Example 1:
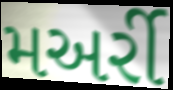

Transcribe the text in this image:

મઅર્રી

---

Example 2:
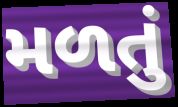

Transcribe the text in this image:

મળતું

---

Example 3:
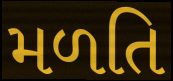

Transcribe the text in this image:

મળતિ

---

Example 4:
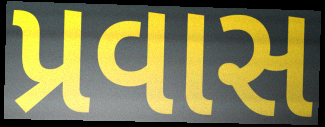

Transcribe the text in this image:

પ્રવાસ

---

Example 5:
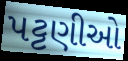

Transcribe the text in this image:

પટ્ટણીઓ